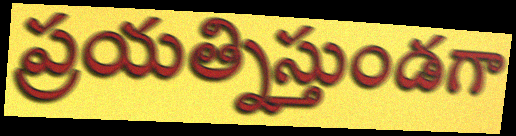
ప్రయత్నిస్తుండగా